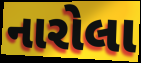
નારોલા